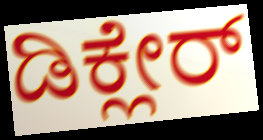
ಡಿಕ್ಲೇರ್